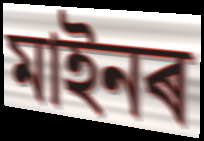
মাইনৰ